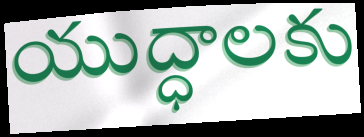
యుద్ధాలకు